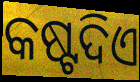
କଷ୍ଟଦିଏ